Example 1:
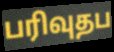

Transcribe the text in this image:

பரிவுதப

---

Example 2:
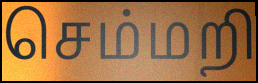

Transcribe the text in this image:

செம்மறி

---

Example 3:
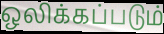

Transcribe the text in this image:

ஒலிக்கப்படும்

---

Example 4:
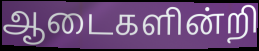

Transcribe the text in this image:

ஆடைகளின்றி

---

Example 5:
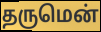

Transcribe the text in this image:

தருமென்